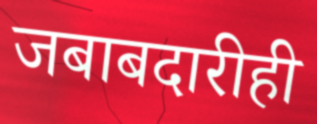
जबाबदारीही